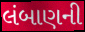
લંબાણની